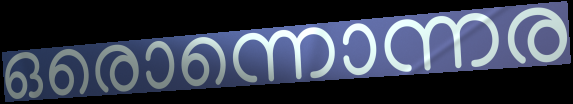
ഒരൊന്നൊന്നര